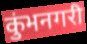
कुंभनगरी